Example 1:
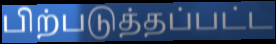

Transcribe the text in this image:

பிற்படுத்தப்பட்ட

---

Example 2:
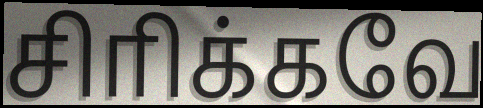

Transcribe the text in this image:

சிரிக்கவே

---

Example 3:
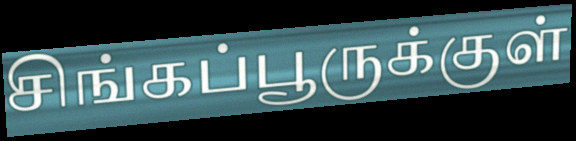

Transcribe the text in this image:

சிங்கப்பூருக்குள்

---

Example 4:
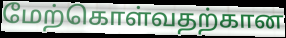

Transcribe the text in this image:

மேற்கொள்வதற்கான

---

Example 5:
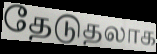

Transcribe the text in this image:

தேடுதலாக